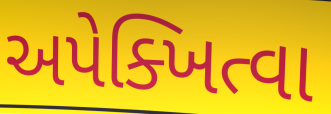
અપેક્ખિત્વા